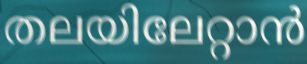
തലയിലേറ്റാൻ